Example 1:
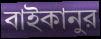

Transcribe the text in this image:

বাইকানুর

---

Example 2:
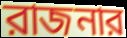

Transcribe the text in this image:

রাজনার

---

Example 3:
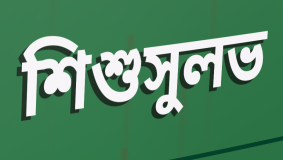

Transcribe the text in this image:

শিশুসুলভ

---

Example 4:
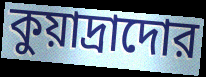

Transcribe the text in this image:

কুয়াদ্রাদোর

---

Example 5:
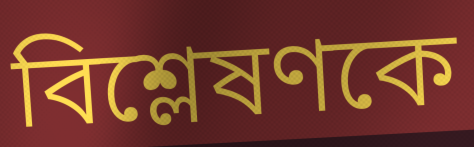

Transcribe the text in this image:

বিশ্লেষণকে